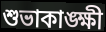
শুভাকাঙ্ক্ষী